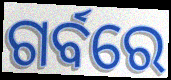
ଗର୍ବରେ